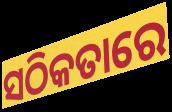
ସଠିକତାରେ